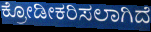
ಕ್ರೋಡೀಕರಿಸಲಾಗಿದೆ